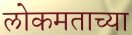
लोकमताच्या